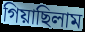
গিয়াছিলাম